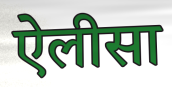
ऐलीसा